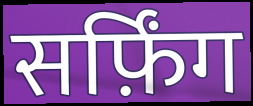
सर्फ़िंग